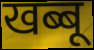
खब्बू